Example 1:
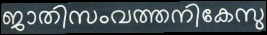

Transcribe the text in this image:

ജാതിസംവത്തനികേസു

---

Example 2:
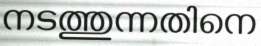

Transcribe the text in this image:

നടത്തുന്നതിനെ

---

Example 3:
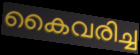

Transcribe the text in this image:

കൈവരിച്ച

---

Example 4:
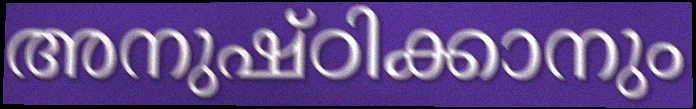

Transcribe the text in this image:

അനുഷ്ഠിക്കാനും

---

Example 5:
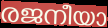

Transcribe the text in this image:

രജനീയാ